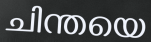
ചിന്തയെ